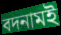
বদনামই